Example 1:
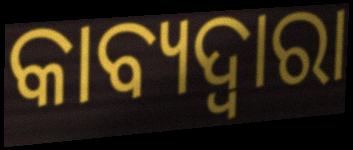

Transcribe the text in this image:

କାବ୍ୟଦ୍ୱାରା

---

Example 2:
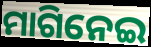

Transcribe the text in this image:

ମାଗିନେଇ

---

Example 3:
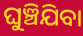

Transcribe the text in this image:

ଘୁଞ୍ଚିଯିବା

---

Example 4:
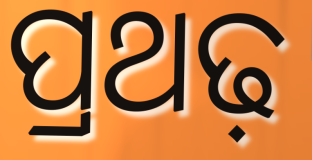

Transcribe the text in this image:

ପ୍ରଥଢ଼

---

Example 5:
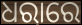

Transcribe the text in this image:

ଧରାରେ